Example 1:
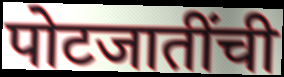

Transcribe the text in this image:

पोटजातींची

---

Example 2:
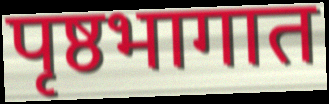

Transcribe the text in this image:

पृष्ठभागात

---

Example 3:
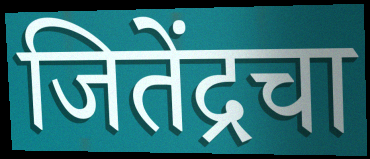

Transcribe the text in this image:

जितेंद्रचा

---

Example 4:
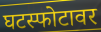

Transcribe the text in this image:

घटस्फोटावर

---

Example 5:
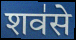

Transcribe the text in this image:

शव॑से